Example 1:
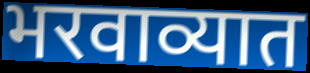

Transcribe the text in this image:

भरवाव्यात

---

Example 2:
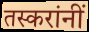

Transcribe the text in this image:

तस्करांनीं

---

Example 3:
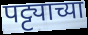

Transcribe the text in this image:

पट्ट्याच्या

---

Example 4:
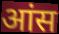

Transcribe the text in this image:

आंस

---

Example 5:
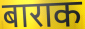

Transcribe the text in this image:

बाराक